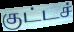
குட்டச்